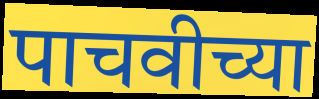
पाचवीच्या